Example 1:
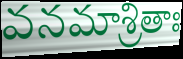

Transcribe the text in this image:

వనమాశ్రితాః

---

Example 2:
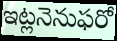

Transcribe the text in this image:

ఇట్లనెనుఫరో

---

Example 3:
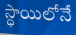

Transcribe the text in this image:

స్ధాయిలోనే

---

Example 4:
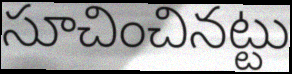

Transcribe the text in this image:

సూచించినట్టు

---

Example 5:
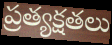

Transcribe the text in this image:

ప్రత్యక్షతలు